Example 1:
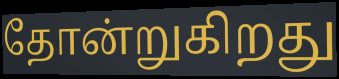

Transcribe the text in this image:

தோன்றுகிறது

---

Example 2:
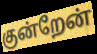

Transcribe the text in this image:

குன்றேன்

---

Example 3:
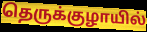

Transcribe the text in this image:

தெருக்குழாயில்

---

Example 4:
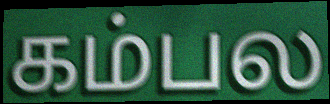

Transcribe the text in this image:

கம்பல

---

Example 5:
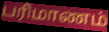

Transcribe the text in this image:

பரிமாணம்